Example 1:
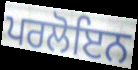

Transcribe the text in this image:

ਪਰਲੋਇਨ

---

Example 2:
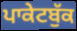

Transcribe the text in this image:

ਪਾਕੇਟਬੁੱਕ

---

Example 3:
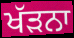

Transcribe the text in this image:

ਖੱੜਨਾ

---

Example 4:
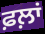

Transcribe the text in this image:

ਫ਼ਲ਼ਾਂ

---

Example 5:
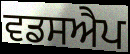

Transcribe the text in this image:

ਵਡਸਐਪ